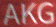
AKG